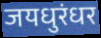
जयधुरंधर